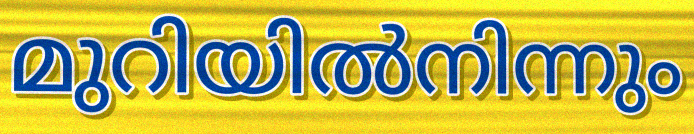
മുറിയിൽനിന്നും